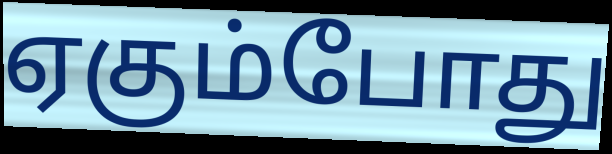
ஏகும்போது